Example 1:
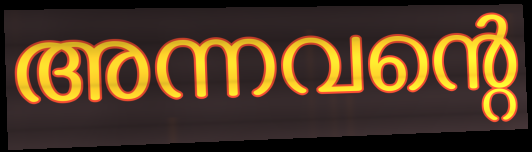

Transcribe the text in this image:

അന്നവന്റെ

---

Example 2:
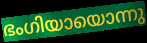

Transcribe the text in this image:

ഭംഗിയായൊന്നു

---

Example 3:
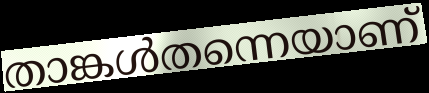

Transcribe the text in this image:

താങ്കൾതന്നെയാണ്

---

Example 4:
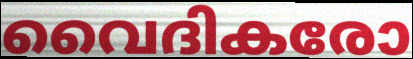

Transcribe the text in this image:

വൈദികരോ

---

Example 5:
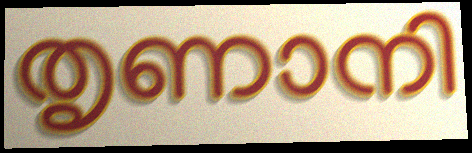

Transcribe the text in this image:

തൃണാനി